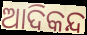
ଆଦିକନ୍ଦ